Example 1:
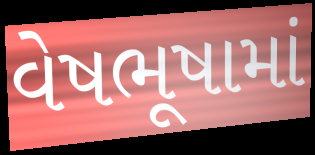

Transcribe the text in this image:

વેષભૂષામાં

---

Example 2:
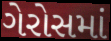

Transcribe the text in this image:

ગેરોસમાં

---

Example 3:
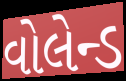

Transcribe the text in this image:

વોલેન્ડ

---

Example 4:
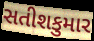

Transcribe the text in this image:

સતીશકુમાર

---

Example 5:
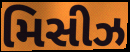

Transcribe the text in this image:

મિસીઝ